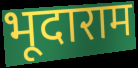
भूदाराम